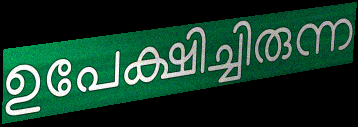
ഉപേക്ഷിച്ചിരുന്ന